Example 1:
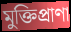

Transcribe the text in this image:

মুক্তিপ্রাণা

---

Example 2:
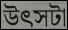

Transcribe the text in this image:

উৎসটা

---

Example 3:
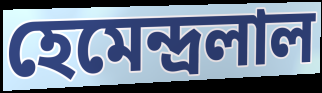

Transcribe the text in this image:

হেমেন্দ্রলাল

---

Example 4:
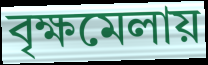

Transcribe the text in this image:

বৃক্ষমেলায়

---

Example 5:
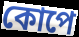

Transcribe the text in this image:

কোপে